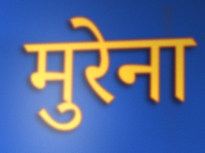
मुरेना